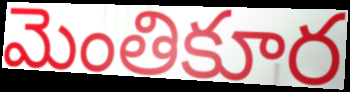
మెంతికూర